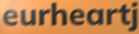
eurheartj